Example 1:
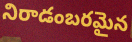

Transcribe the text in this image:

నిరాడంబరమైన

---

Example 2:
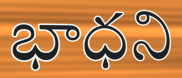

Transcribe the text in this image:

భాధని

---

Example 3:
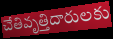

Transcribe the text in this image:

చేతివృత్తిదారులకు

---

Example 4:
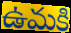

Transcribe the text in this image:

ఉమకి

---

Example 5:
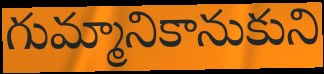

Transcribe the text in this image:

గుమ్మానికానుకుని